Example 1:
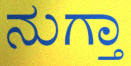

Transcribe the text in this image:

ನುಗ್ತಾ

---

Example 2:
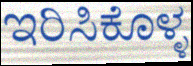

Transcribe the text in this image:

ಇರಿಸಿಕೊಳ್ಳ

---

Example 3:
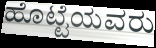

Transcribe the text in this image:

ಹೊಟ್ಟೆಯವರು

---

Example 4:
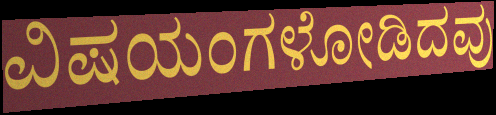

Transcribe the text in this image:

ವಿಷಯಂಗಳೋಡಿದವು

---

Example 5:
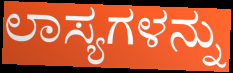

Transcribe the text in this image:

ಲಾಸ್ಯಗಳನ್ನು